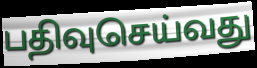
பதிவுசெய்வது